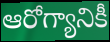
ఆరోగ్యానికీ